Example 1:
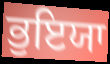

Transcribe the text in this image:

ਭੁਇਯਾ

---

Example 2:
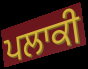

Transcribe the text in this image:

ਪਲਾਕੀ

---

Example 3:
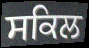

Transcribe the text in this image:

ਸਕਿਲ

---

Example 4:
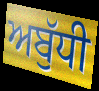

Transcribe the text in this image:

ਅਬੁੱਧੀ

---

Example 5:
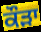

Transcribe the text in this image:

ਕੌਡ਼ਾ